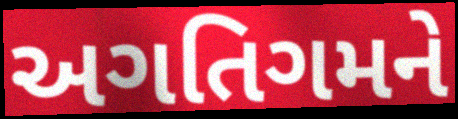
અગતિગમને